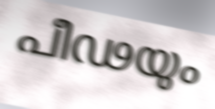
പീഢയും